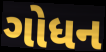
ગોધન